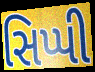
સિપ્પી